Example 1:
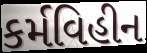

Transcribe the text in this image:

કર્મવિહીન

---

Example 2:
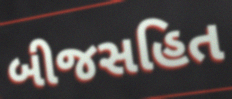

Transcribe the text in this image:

બીજસહિત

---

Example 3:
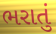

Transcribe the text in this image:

ભરાતું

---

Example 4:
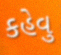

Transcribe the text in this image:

કહેવુ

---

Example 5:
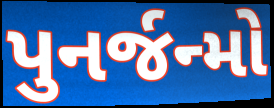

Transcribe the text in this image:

પુનર્જન્મો